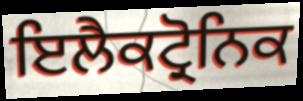
ਇਲੈਕਟ੍ਰੋਨਿਕ